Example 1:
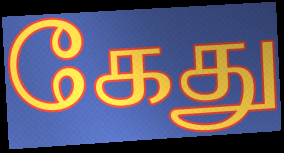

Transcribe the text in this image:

கேது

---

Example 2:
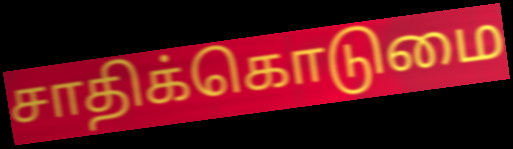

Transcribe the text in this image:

சாதிக்கொடுமை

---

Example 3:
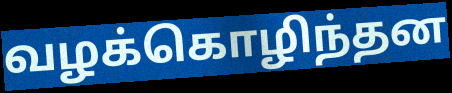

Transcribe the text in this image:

வழக்கொழிந்தன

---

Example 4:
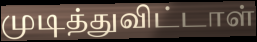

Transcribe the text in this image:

முடித்துவிட்டாள்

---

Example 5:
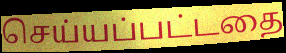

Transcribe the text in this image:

செய்யப்பட்டதை